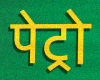
पेट्रो